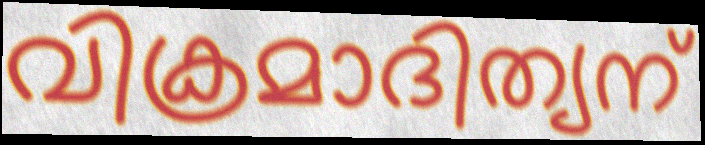
വിക്രമാദിത്യന്